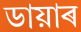
ডায়াৰ